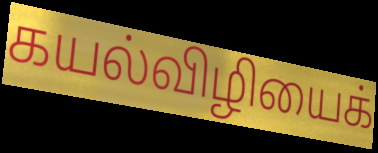
கயல்விழியைக்